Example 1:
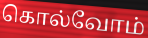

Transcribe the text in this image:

கொல்வோம்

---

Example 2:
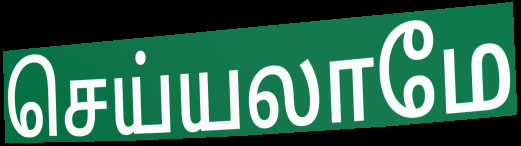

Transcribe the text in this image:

செய்யலாமே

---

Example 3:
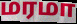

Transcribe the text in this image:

மரமா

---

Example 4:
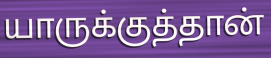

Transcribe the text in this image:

யாருக்குத்தான்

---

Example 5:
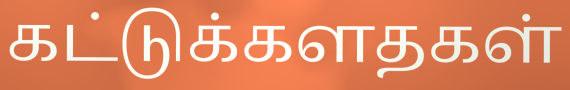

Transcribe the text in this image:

கட்டுக்களதகள்